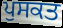
ਪੁਸਕਤ